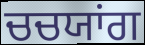
ਚਚਯਾਂਗ